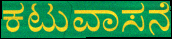
ಕಟುವಾಸನೆ